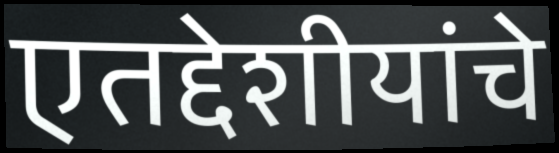
एतद्देशीयांचे